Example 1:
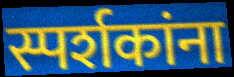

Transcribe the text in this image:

स्पर्शकांना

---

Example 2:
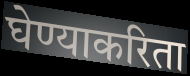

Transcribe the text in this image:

घेण्याकरिता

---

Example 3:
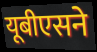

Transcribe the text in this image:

यूबीएसने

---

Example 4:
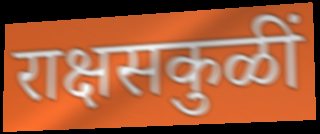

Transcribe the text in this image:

राक्षसकुळीं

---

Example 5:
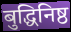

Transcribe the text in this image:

बुद्धिनिष्ठ